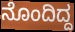
ನೊಂದಿದ್ದ